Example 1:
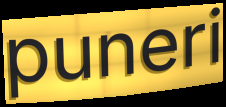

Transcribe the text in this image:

puneri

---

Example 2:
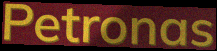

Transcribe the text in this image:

Petronas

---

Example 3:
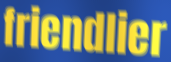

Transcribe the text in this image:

friendlier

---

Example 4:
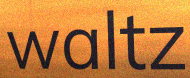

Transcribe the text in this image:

waltz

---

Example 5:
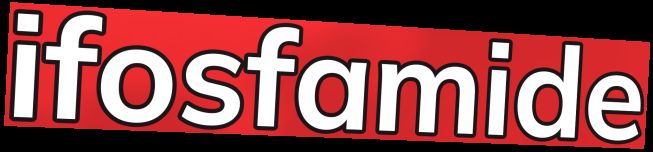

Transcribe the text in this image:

ifosfamide